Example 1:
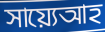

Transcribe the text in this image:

সায়্যেআহ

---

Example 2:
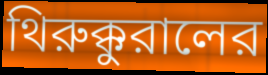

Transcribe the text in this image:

থিরুক্কুরালের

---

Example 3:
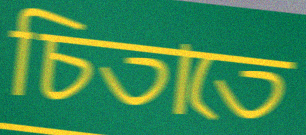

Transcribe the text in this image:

চিতাতে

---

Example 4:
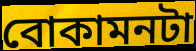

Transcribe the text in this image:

বোকামনটা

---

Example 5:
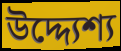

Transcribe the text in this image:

উদ্দ্যেশ্য